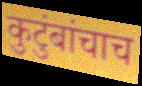
कुटुंबांचाच